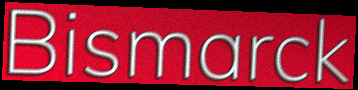
Bismarck